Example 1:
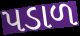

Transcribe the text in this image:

પડાળ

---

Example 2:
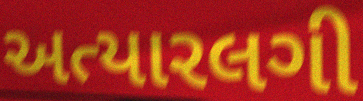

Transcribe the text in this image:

અત્યારલગી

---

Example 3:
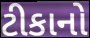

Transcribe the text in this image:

ટીકાનો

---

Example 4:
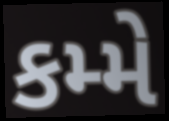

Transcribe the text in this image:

કમ્મે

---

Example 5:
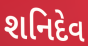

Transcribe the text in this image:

શનિદેવ